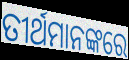
ତୀର୍ଥମାନଙ୍କରେ